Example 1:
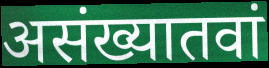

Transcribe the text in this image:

असंख्यातवां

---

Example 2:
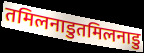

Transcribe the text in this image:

तमिलनाडुतमिलनाडु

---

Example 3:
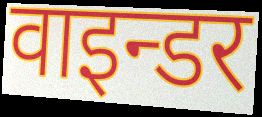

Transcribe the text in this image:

वाइन्डर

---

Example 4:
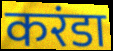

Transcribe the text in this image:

करंडा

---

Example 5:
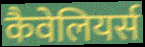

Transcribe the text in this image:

कैवेलियर्स